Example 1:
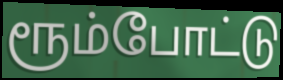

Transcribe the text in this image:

ரூம்போட்டு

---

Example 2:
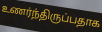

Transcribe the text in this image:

உணர்ந்திருப்பதாக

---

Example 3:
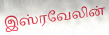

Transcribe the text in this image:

இஸ்ரவேலின்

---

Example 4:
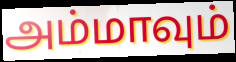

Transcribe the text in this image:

அம்மாவும்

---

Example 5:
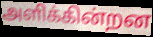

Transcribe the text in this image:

அளிக்கின்றன